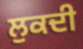
ਲੁਕਦੀ